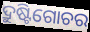
ଦ୍ରୁଷ୍ଟିଗୋଚର